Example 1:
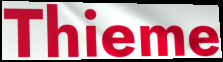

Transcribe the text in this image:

Thieme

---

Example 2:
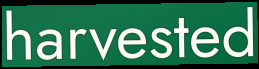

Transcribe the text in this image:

harvested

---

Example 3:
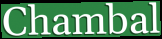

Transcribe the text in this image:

Chambal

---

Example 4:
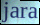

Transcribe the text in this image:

jara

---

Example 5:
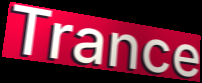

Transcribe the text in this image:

Trance